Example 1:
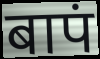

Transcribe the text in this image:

बापं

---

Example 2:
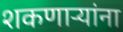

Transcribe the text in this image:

शकणार्‍यांना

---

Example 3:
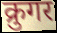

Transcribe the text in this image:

क्रुगर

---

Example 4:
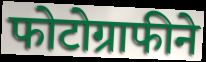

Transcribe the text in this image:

फोटोग्राफीने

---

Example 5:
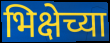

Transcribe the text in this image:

भिक्षेच्या